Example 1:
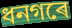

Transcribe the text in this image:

ধনগৰে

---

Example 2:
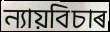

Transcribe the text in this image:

ন্যায়বিচাৰ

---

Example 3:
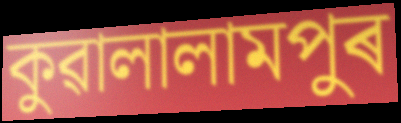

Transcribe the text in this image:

কুৱালালামপুৰ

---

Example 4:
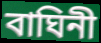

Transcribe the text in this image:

বাঘিনী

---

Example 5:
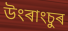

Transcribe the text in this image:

উংৰাংচুৰ